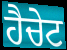
ਹੈਚੇਟ